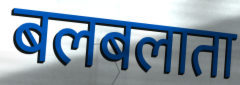
बलबलाता